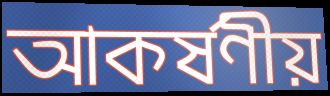
আকর্ষণীয়